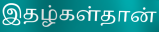
இதழ்கள்தான்